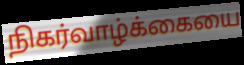
நிகர்வாழ்க்கையை